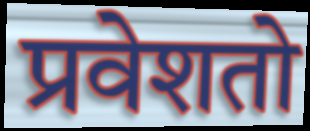
प्रवेशतो